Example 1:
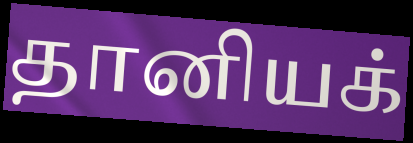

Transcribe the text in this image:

தானியக்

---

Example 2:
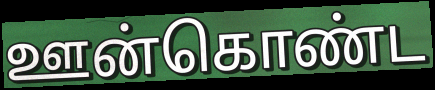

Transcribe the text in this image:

ஊன்கொண்ட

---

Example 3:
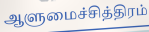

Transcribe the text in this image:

ஆளுமைச்சித்திரம்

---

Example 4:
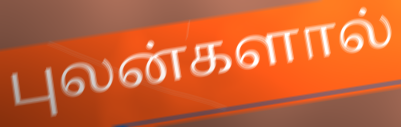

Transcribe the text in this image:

புலன்களால்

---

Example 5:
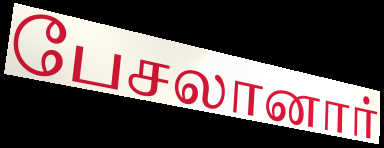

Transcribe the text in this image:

பேசலானார்